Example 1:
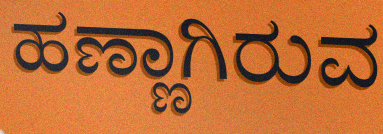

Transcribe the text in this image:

ಹಣ್ಣಾಗಿರುವ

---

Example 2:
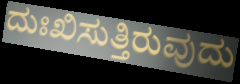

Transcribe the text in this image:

ದುಃಖಿಸುತ್ತಿರುವುದು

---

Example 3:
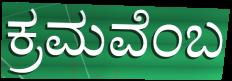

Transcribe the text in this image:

ಕ್ರಮವೆಂಬ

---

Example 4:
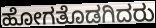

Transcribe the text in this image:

ಹೋಗತೊಡಗಿದರು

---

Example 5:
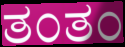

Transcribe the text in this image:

ತಂತಂ